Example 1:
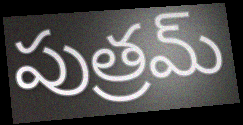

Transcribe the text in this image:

పుత్రమ్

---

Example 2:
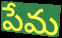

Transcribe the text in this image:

పేమ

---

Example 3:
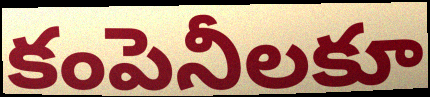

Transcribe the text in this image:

కంపెనీలకూ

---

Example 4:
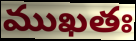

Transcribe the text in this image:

ముఖతః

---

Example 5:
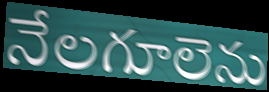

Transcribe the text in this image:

నేలగూలెను